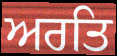
ਅਰਤਿ